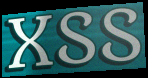
XSS